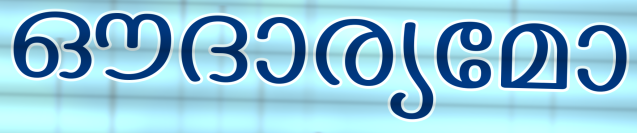
ഔദാര്യമോ